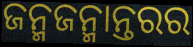
ଜନ୍ମଜନ୍ମାନ୍ତରର